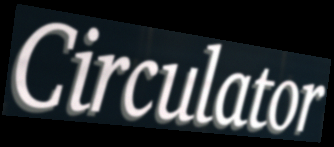
Circulator